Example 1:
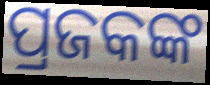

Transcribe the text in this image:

ପ୍ରଜକଙ୍କ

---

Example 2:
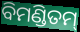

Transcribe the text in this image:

ବିମଣ୍ଡିତମ୍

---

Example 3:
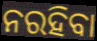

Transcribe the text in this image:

ନରହିବା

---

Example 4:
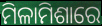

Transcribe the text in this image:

ମିଳାମିଶାରେ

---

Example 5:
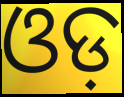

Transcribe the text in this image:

ଓଡ଼